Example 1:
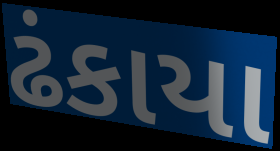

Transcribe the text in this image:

ઢંકાયા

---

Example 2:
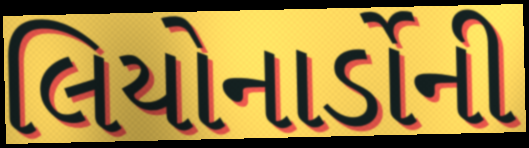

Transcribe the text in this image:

લિયોનાર્ડોની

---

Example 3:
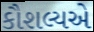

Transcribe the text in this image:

કૌશલ્યએ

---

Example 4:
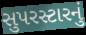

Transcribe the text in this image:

સુપરસ્ટારનું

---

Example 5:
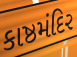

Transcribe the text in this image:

કાષ્ઠમંદિર